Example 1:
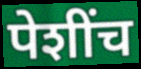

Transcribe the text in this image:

पेशींच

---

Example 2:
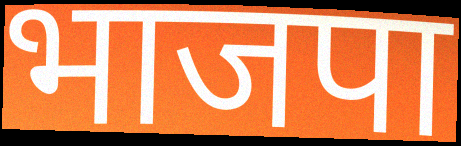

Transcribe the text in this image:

भाजपा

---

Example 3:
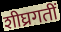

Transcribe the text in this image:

शीघ्रगतीं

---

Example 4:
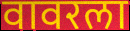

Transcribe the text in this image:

वावरला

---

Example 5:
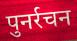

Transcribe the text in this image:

पुनर्रचन